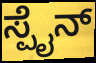
ಸ್ಪೈನ್